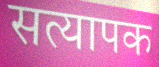
सत्यापक